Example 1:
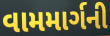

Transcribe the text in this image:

વામમાર્ગની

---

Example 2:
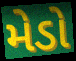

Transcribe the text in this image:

મેડો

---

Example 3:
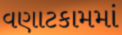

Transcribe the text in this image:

વણાટકામમાં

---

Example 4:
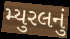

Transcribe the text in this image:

મ્યુરલનું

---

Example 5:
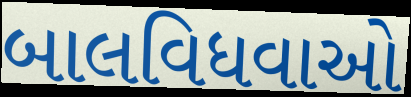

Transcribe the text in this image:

બાલવિધવાઓ